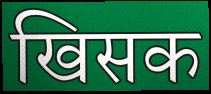
खिसक